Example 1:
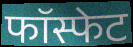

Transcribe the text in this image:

फॉस्फेट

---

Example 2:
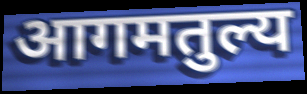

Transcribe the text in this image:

आगमतुल्य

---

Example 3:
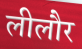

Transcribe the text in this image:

लीलौर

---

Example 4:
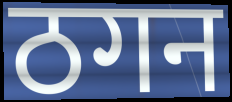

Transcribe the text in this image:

ठगन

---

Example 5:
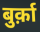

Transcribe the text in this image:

बुर्क़ा